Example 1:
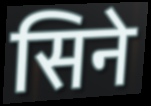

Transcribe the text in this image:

सिने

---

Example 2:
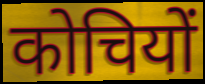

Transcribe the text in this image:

कोचियों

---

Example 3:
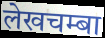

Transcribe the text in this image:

लेखचम्बा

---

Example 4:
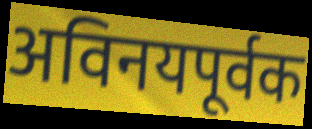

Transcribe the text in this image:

अविनयपूर्वक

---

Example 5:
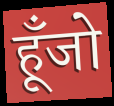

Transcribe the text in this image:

हूँजो